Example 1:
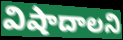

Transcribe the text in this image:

విషాదాలని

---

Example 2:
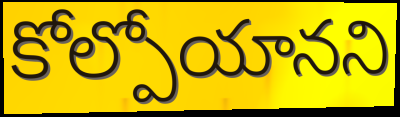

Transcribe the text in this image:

కోల్పోయానని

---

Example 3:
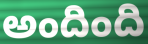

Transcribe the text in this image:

అందింది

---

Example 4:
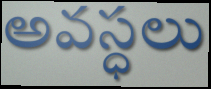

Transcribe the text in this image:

అవస్ధలు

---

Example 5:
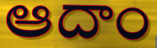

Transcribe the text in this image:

ఆదాం